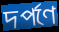
দর্পণে